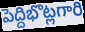
పెద్దిభొట్లగారి